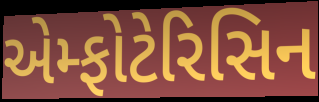
એમ્ફોટેરિસિન